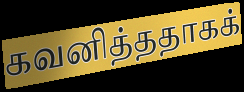
கவனித்ததாகக்